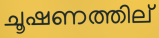
ചൂഷണത്തില്